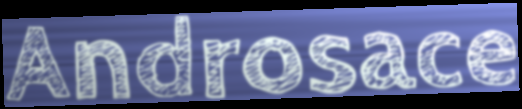
Androsace